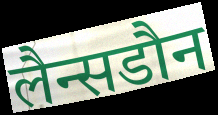
लैन्सडौन